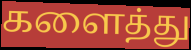
களைத்து